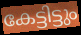
കേട്ടിട്ടും